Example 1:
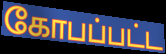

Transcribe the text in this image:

கோபப்பட்ட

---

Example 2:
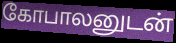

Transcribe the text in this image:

கோபாலனுடன்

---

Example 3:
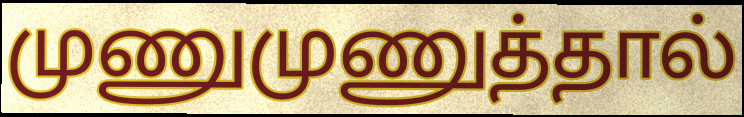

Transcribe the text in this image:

முணுமுணுத்தால்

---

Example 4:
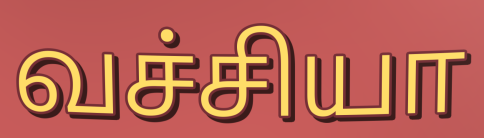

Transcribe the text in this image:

வச்சியா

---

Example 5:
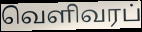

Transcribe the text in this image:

வெளிவரப்